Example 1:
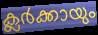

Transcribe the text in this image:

ക്ലർക്കായും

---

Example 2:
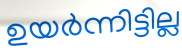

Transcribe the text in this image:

ഉയർന്നിട്ടില്ല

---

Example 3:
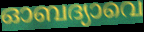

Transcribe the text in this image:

ഓബദ്യാവെ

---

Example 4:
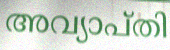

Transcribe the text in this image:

അവ്യാപ്തി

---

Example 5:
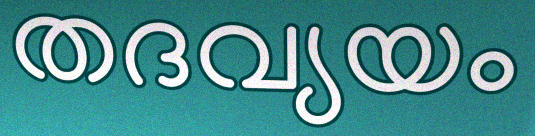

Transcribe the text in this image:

തദവ്യയം